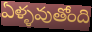
ఏళ్ళవుతోంది